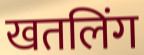
खतलिंग